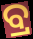
ବ୍ର